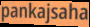
pankajsaha